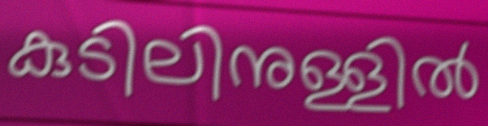
കുടിലിനുള്ളിൽ